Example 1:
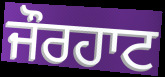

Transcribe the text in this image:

ਜੌਰਹਾਟ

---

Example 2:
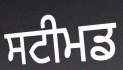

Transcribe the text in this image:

ਸਟੀਮਡ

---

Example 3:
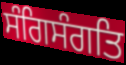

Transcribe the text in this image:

ਸੰਗਿਸੰਗਤਿ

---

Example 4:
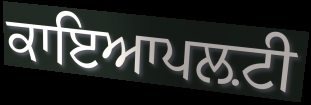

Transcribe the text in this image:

ਕਾਇਆਪਲ਼ਟੀ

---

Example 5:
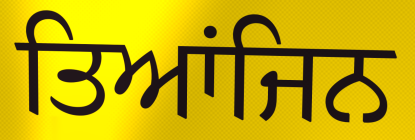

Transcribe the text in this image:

ਤਿਆਂਜਿਨ